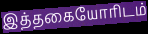
இத்தகையோரிடம்